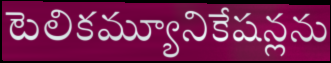
టెలికమ్యూనికేషన్లను